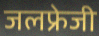
जलफ्रेजी